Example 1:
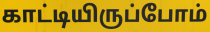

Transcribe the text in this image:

காட்டியிருப்போம்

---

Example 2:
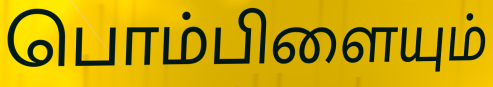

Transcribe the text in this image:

பொம்பிளையும்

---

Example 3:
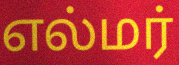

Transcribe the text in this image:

எல்மர்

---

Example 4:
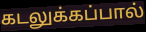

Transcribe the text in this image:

கடலுக்கப்பால்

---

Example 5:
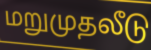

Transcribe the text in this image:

மறுமுதலீடு